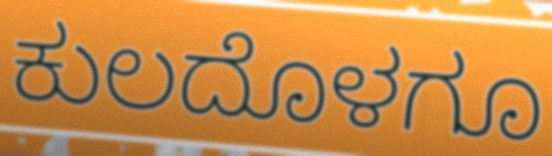
ಕುಲದೊಳಗೂ